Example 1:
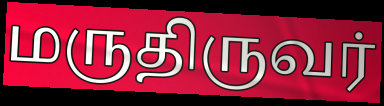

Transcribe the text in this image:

மருதிருவர்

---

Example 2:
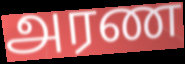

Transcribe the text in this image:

அரண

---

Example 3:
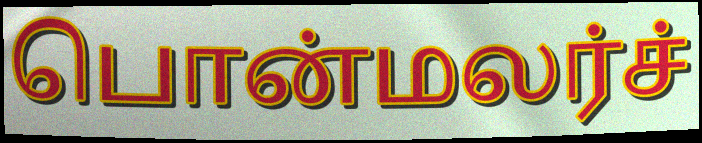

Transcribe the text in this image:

பொன்மலர்ச்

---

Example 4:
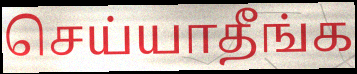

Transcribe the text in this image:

செய்யாதீங்க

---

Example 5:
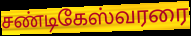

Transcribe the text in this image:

சண்டிகேஸ்வரரை